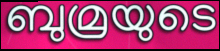
ബുമ്രയുടെ